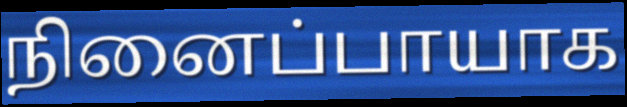
நினைப்பாயாக